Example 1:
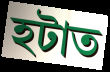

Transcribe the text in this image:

হটাত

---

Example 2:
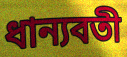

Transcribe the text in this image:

ধান্যবতী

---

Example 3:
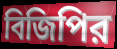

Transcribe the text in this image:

বিজিপির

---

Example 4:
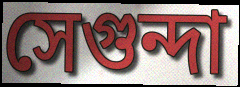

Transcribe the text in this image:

সেগুন্দা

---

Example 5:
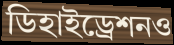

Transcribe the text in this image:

ডিহাইড্রেশনও